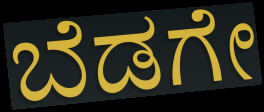
ಬೆಡಗೇ